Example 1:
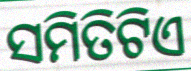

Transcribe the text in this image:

ସମିତିଟିଏ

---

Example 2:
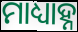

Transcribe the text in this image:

ମାଧ୍ୟାହ୍ନ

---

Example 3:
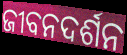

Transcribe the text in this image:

ଜୀବନଦର୍ଶନ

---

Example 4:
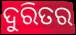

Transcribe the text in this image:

ଦୁରିତର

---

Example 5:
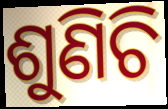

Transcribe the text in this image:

ଶୁଣିଚି